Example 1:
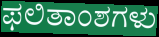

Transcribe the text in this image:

ಫಲಿತಾಂಶಗಳು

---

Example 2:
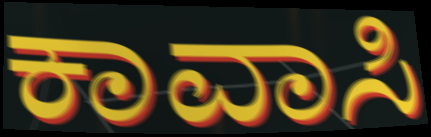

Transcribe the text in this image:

ಕಾವಾಸಿ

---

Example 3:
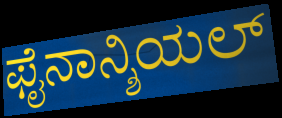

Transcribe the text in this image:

ಫೈನಾನ್ಶಿಯಲ್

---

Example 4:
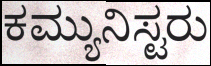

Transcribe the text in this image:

ಕಮ್ಯುನಿಸ್ಟರು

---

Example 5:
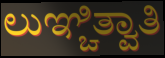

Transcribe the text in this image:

ಲುಞ್ಚಿತ್ವಾತಿ